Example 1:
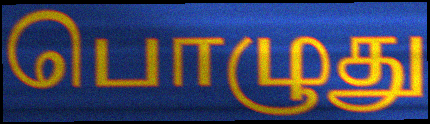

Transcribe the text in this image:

பொழுது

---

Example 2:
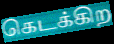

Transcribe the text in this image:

கெடக்கிற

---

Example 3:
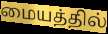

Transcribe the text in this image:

மையத்தில்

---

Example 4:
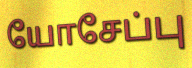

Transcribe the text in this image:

யோசேப்பு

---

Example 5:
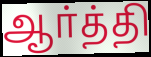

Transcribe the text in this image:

ஆர்த்தி